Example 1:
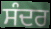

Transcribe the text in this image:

ਸੰਦਰ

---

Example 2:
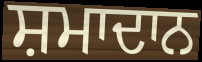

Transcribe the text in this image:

ਸ਼ਮਾਦਾਨ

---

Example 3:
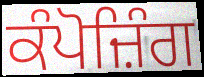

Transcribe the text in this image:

ਕੰਪੋਜ਼ਿੰਗ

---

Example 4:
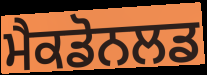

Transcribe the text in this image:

ਮੈਕਡੋਨਲਡ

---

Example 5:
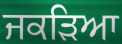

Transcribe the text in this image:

ਜਕੜਿਆ